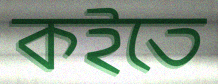
কইতে